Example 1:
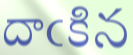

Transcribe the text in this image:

దాఁకిన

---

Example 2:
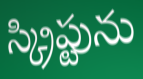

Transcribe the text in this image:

స్క్రిప్టును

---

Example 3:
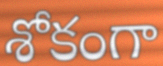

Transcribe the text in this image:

శోకంగా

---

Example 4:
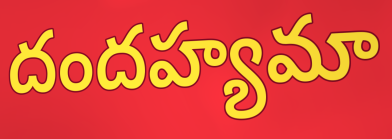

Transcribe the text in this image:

దందహ్యమా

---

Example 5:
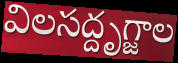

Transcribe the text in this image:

విలసద్దృగ్జాల